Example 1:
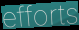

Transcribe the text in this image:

efforts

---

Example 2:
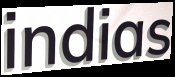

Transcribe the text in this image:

indias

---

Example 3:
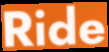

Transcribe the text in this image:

Ride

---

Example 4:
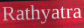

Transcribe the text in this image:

Rathyatra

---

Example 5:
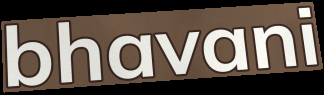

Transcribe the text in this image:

bhavani